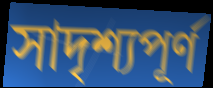
সাদৃশ্যপূর্ণ